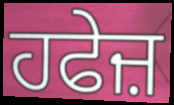
ਹਫੇਜ਼